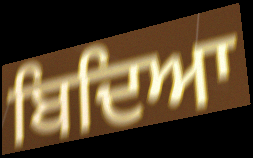
ਬਿਦਿਆ